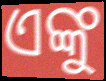
ଏଙ୍କୁ